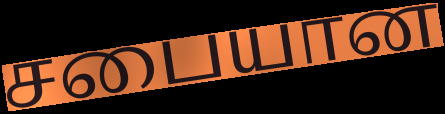
சபையான